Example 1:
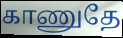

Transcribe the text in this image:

காணுதே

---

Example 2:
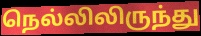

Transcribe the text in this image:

நெல்லிலிருந்து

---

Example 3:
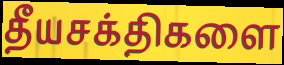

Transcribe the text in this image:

தீயசக்திகளை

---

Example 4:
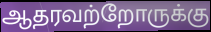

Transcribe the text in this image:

ஆதரவற்றோருக்கு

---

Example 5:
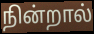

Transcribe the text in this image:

நின்றால்